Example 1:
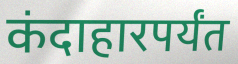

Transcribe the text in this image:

कंदाहारपर्यंत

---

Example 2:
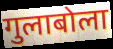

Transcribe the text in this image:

गुलाबोला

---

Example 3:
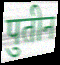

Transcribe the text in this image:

पुतीन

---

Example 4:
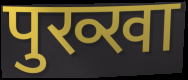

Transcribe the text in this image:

पुख्खा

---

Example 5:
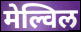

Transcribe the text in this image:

मेल्विल